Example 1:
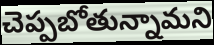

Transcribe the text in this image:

చెప్పబోతున్నామని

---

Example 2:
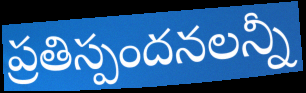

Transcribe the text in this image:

ప్రతిస్పందనలన్నీ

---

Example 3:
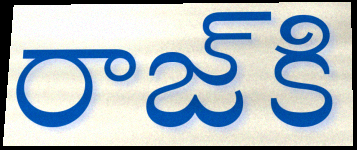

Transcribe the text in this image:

రాజ్‌కి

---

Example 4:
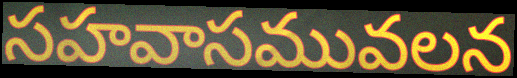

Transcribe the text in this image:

సహవాసమువలన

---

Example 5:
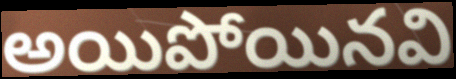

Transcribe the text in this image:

అయిపోయినవి